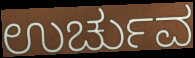
ಉರ್ಚುವ